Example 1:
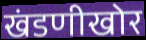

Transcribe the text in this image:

खंडणीखोर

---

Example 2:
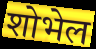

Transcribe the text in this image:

शोभेल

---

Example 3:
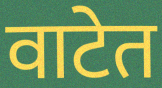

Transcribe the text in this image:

वाटेत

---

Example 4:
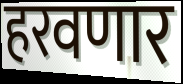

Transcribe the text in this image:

हरवणार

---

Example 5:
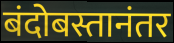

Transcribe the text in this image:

बंदोबस्तानंतर